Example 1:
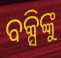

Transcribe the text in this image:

ବକ୍ସିଙ୍କୁ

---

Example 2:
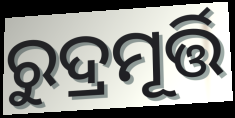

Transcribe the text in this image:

ରୁଦ୍ରମୂର୍ତ୍ତି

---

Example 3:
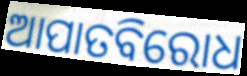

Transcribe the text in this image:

ଆପାତବିରୋଧ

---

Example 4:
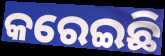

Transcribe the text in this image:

କରେଇଛି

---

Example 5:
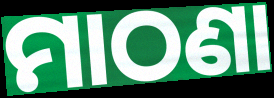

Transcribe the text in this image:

ମାଠଣା